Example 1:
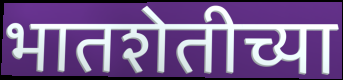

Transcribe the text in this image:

भातशेतीच्या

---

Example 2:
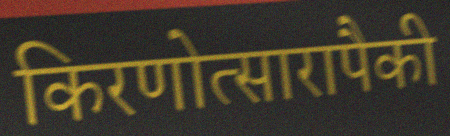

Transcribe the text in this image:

किरणोत्सारापैकी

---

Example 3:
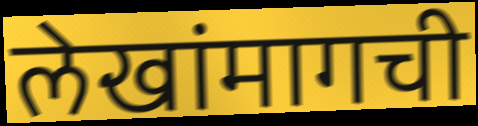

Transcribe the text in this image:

लेखांमागची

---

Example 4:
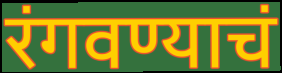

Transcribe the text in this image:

रंगवण्याचं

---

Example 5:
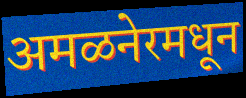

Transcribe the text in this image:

अमळनेरमधून